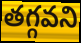
తగ్గవని